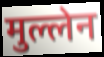
मुल्लेन